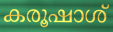
കരൂഷാശ്